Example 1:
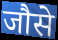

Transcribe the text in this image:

जौसे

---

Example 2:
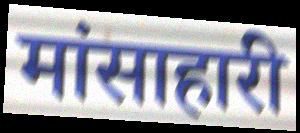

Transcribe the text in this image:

मांसाहारी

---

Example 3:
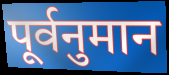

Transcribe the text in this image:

पूर्वनुमान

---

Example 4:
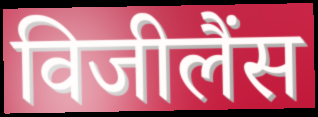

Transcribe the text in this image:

विजीलैंस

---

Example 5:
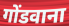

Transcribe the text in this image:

गोंडवाना